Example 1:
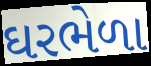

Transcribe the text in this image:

ઘરભેળા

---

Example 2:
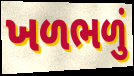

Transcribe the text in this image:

ખળભળું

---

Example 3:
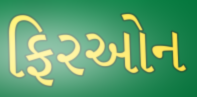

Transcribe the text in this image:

ફિરઓન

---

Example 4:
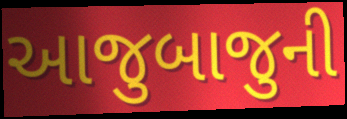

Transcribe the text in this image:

આજુબાજુની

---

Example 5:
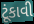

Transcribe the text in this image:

ટૂંકાવી